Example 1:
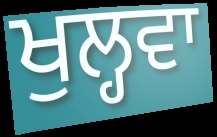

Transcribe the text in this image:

ਖੁਲ੍ਹਵਾ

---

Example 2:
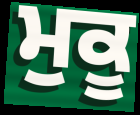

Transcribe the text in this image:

ਮੁਕੂ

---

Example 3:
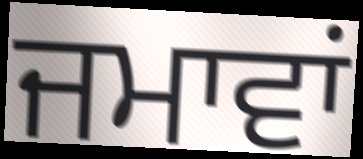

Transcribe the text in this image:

ਜਮਾਵਾਂ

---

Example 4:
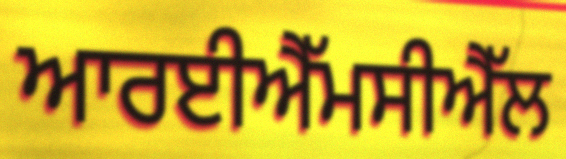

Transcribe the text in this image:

ਆਰਈਐੱਮਸੀਐੱਲ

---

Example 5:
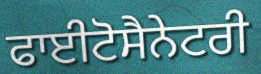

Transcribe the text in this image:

ਫਾਈਟੋਸੈਨੇਟਰੀ